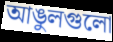
আঙুলগুলো